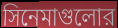
সিনেমাগুলোর